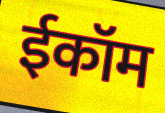
ईकॉम